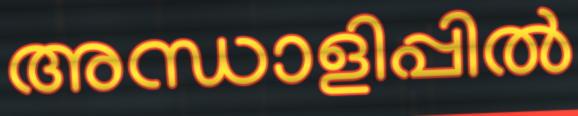
അന്ധാളിപ്പിൽ